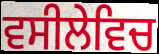
ਵਸੀਲੇਵਿਚ